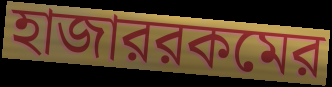
হাজাররকমের